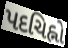
પદચિહ્નો